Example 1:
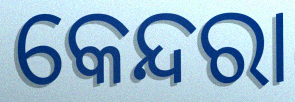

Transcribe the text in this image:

କେନ୍ଦରା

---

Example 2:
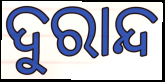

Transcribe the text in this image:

ଦୁରାନ୍ଦ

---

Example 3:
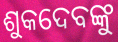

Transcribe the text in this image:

ଶୁକଦେବଙ୍କୁ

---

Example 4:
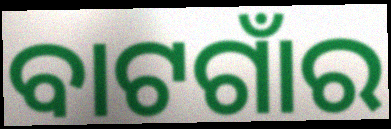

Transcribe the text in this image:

ବାଟଗାଁର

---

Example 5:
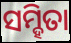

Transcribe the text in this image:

ସମ୍ହିତା